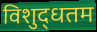
विशुद्धतम